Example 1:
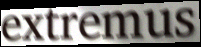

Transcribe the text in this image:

extremus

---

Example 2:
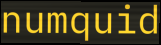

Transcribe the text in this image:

numquid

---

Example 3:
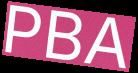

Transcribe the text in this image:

PBA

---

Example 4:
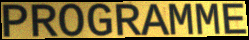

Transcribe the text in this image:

PROGRAMME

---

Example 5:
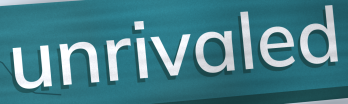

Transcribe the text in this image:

unrivaled